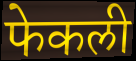
फेकली